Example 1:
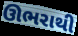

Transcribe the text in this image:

ઊભરાથી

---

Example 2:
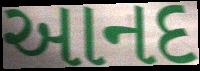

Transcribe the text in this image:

આનદ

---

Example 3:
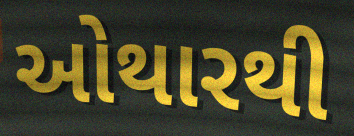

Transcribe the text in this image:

ઓથારથી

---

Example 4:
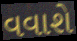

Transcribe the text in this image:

વવાશે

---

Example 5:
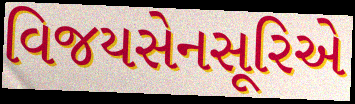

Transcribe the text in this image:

વિજયસેનસૂરિએ